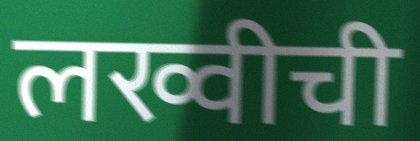
लख्वीची